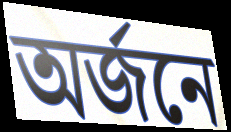
অর্জনে